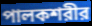
পালকশরীর